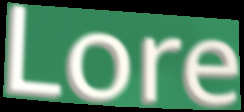
Lore